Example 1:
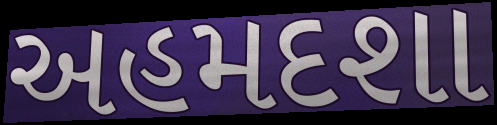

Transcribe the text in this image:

અહમદશા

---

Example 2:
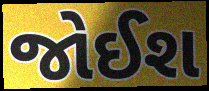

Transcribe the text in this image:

જોઈશ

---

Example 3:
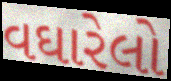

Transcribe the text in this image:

વઘારેલો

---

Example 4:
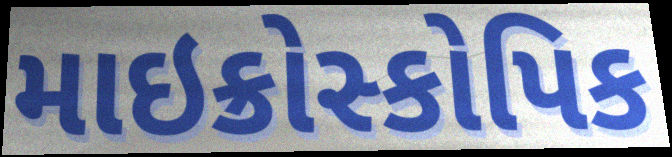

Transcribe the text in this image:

માઇક્રોસ્કોપિક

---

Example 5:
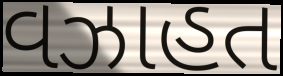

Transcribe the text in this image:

વઝાહત